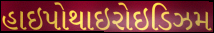
હાઇપોથાઇરોઇડિઝમ